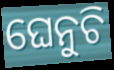
ଘେନୁଚି